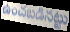
ఉంచబడినట్టు